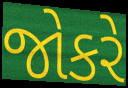
જોકરે